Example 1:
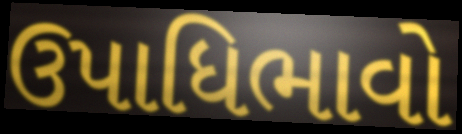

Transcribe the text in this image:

ઉપાધિભાવો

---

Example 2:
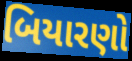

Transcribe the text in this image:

બિયારણો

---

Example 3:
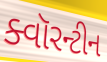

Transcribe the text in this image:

ક્વૉરન્ટીન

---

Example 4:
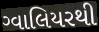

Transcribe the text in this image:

ગ્વાલિયરથી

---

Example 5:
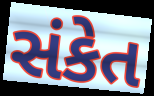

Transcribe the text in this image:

સંકેત